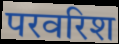
परवरिश